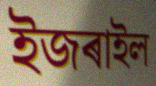
ইজৰাইল